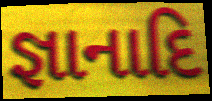
જ્ઞાનાદિ